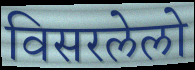
विसरलेलो